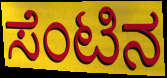
ಸೆಂಟಿನ